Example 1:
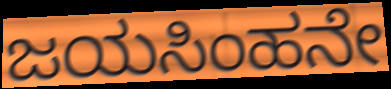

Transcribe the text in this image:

ಜಯಸಿಂಹನೇ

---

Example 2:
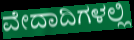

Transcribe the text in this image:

ವೇದಾದಿಗಳಲ್ಲಿ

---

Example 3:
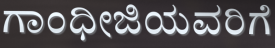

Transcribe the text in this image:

ಗಾಂಧೀಜಿಯವರಿಗೆ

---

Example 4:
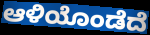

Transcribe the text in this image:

ಆಳಿಯೊಂಡೆದೆ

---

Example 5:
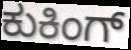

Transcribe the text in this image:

ಕುಕಿಂಗ್